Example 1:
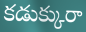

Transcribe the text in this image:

కడుక్కురా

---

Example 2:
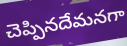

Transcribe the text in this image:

చెప్పినదేమనగా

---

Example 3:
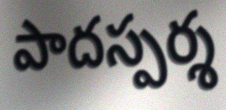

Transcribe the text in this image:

పాదస్పర్శ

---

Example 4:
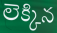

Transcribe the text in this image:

లెక్కిన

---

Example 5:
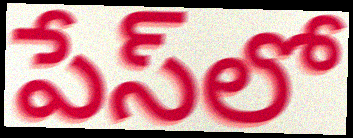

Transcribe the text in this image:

పేస్‌లో